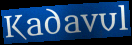
Kadavul